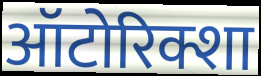
ऑटोरिक्शा